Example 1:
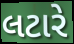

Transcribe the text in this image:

લટારે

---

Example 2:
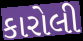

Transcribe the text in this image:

કારોલી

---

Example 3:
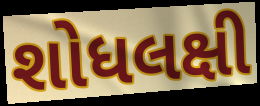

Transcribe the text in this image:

શોધલક્ષી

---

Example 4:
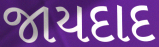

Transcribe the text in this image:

જાયદાદ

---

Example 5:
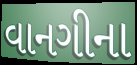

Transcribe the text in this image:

વાનગીના